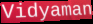
Vidyaman